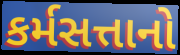
કર્મસત્તાનો